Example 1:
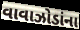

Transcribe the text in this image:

વાવાઝોડાંના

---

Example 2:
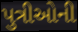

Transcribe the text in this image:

પુત્રીઓની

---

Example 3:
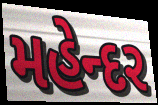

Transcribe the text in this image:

મહેન્દર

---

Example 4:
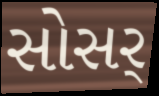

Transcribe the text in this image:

સોસર્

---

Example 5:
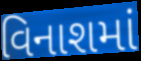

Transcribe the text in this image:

વિનાશમાં